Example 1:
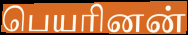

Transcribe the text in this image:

பெயரினன்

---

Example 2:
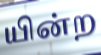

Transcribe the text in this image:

யின்ற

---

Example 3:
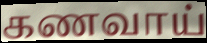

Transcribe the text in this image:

கணவாய்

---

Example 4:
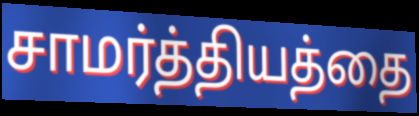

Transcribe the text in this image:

சாமர்த்தியத்தை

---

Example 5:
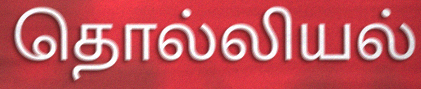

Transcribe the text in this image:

தொல்லியல்